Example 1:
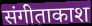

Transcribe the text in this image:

संगीताकाश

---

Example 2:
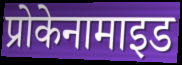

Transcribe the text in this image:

प्रोकेनामाइड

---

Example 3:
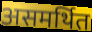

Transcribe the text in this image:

असमर्थित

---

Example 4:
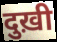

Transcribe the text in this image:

दुख़ी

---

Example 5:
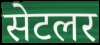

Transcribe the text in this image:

सेटलर